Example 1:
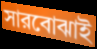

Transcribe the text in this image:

সারবোঝাই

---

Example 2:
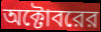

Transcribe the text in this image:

অক্টোবরের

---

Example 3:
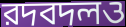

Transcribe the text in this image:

রদবদলও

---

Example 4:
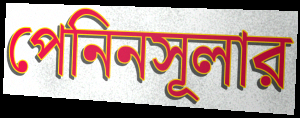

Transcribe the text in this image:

পেনিনসূলার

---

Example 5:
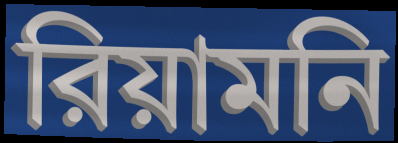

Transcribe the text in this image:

রিয়ামনি